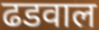
ढडवाल